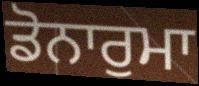
ਡੋਨਾਰੁਮਾ